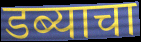
डब्याचा